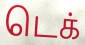
டெக்